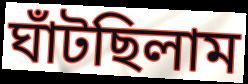
ঘাঁটছিলাম